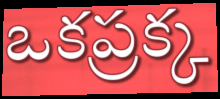
ఒకప్రక్క